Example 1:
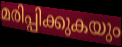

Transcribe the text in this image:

മരിപ്പിക്കുകയും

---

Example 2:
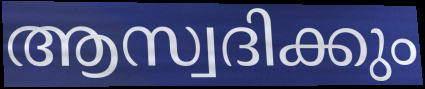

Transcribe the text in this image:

ആസ്വദിക്കും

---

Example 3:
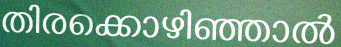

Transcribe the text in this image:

തിരക്കൊഴിഞ്ഞാൽ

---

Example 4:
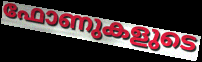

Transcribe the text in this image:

ഫോണുകളുടെ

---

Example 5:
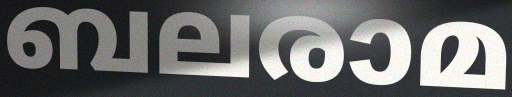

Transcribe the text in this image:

ബലരാമ